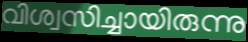
വിശ്വസിച്ചായിരുന്നു